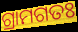
ଗ୍ରାମଗତଃ